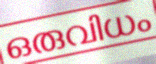
ഒരുവിധം